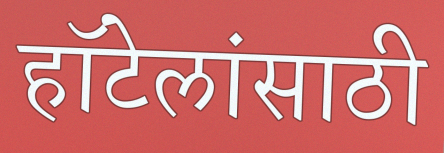
हॉटेलांसाठी